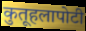
कुतूहलापोटी